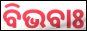
ବିଭବାଃ